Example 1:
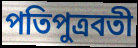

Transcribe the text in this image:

পতিপুত্রবতী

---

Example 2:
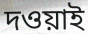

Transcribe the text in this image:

দওয়াই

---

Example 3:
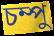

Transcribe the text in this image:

চম্পু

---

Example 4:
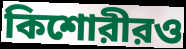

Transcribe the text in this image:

কিশোরীরও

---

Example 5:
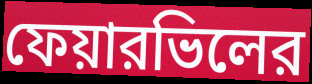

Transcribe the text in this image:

ফেয়ারভিলের